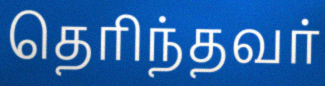
தெரிந்தவர்